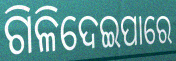
ଗିଳିଦେଇପାରେ